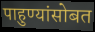
पाहुण्यांसोबत